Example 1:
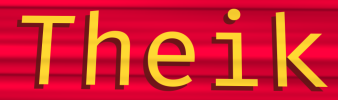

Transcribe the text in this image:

Theik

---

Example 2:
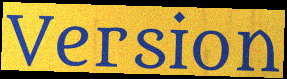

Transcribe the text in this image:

Version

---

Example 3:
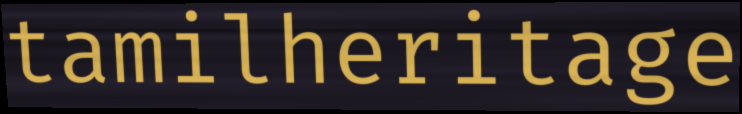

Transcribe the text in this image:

tamilheritage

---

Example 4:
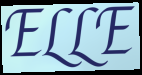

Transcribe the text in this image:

ELLE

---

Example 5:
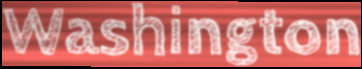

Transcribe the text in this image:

Washington